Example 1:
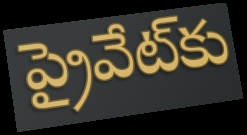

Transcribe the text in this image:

ప్రైవేట్‌కు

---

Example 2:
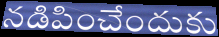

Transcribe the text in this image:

నడిపించేందుకు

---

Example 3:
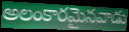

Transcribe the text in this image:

అలంకారమైనవాడు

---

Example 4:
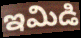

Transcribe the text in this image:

ఇమిడి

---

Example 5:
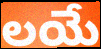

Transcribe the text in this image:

లయే